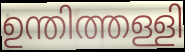
ഉന്തിത്തള്ളി